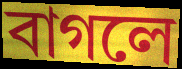
বাগলে